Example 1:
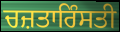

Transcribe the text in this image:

ਚਜ਼ਤਾਰਿੰਸਤੀ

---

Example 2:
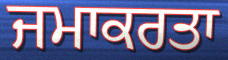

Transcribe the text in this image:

ਜਮਾਕਰਤਾ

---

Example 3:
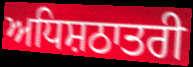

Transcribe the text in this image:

ਅਧਿਸ਼ਠਾਤਰੀ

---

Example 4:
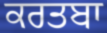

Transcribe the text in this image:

ਕਰਤਬਾ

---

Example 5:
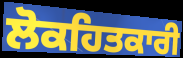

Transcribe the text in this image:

ਲੋਕਹਿਤਕਾਰੀ